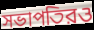
সভাপতিরও